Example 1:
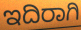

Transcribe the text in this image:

ಇದಿರಾಗಿ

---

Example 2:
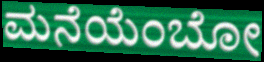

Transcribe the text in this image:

ಮನೆಯೆಂಬೋ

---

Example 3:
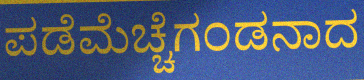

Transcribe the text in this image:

ಪಡೆಮೆಚ್ಚೆಗಂಡನಾದ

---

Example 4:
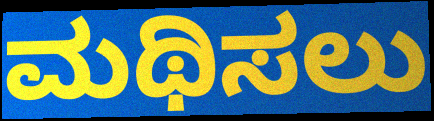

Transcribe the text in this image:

ಮಥಿಸಲು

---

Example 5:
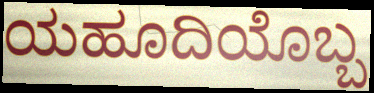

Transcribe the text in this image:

ಯಹೂದಿಯೊಬ್ಬ